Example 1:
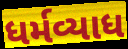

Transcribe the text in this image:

ધર્મવ્યાધ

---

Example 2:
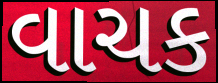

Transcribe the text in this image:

વાચક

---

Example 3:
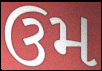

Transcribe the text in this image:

ઉમ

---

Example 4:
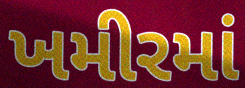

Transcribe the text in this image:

ખમીરમાં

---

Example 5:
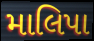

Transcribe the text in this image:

માલિપા